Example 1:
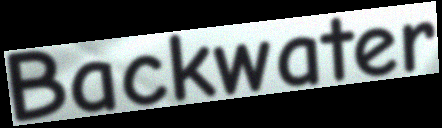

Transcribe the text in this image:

Backwater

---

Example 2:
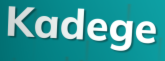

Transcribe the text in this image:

Kadege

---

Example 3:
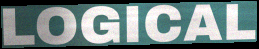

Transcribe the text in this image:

LOGICAL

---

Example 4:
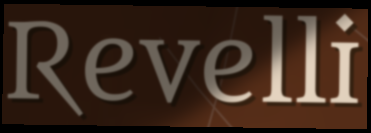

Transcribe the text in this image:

Revelli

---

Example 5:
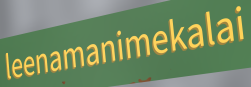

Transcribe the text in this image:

leenamanimekalai